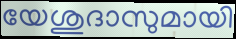
യേശുദാസുമായി